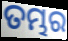
ତମ୍ଭର